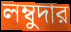
লম্বুদার